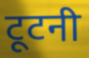
टूटनी